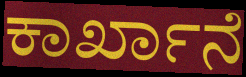
ಕಾರ್ಖಾನೆ